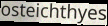
osteichthyes